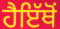
ਹੈਇੱਥੋਂ